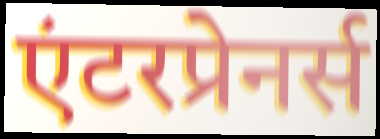
एंटरप्रेनर्स